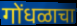
गोंधळाचा